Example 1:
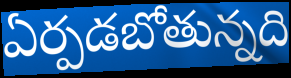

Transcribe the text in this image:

ఏర్పడబోతున్నది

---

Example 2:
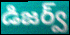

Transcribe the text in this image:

డిజర్వ్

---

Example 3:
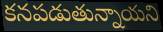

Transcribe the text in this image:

కనపడుతున్నాయని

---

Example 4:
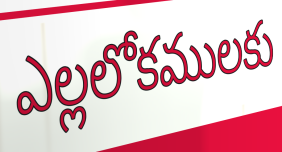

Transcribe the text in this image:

ఎల్లలోకములకు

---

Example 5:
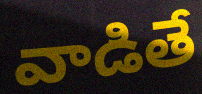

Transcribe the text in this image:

వాడితే